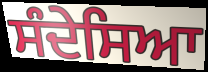
ਸੰਦੇਸਿਆ